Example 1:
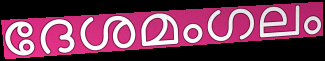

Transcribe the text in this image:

ദേശമംഗലം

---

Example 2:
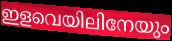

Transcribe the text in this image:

ഇളവെയിലിനേയും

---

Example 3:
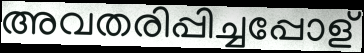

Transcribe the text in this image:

അവതരിപ്പിച്ചപ്പോള്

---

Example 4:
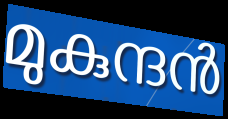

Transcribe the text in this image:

മുകുന്ദൻ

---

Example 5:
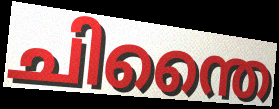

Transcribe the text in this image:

ചിന്തൈ